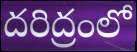
దరిద్రంలో